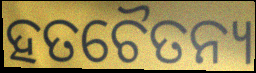
ହତଚୈତନ୍ୟ